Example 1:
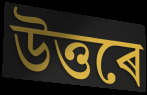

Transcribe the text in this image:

উত্তৰে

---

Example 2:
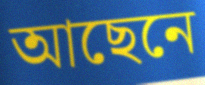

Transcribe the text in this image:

আছেনে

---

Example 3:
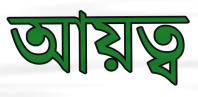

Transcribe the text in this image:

আয়ত্ব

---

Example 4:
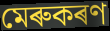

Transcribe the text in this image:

মেৰুকৰণ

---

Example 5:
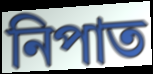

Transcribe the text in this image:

নিপাত